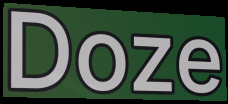
Doze